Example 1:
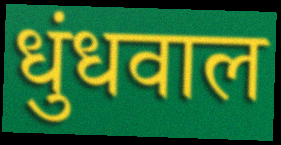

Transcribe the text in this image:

धुंधवाल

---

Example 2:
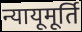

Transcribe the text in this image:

न्यायूमूर्ति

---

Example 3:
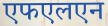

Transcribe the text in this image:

एफएलएन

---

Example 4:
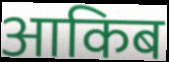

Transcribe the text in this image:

आकिब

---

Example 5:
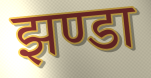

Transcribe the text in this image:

झण्डा